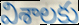
విశాలకు